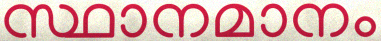
സ്ഥാനമാനം